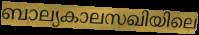
ബാല്യകാലസഖിയിലെ